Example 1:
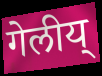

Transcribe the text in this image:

गेलीय्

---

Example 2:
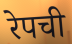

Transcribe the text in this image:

रेपची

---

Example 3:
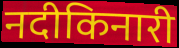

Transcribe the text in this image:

नदीकिनारी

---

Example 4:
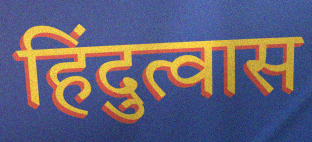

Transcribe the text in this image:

हिंदुत्वास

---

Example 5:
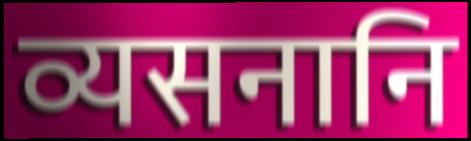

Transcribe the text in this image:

व्यसनानि